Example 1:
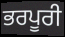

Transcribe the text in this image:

ਭਰਪੂਰੀ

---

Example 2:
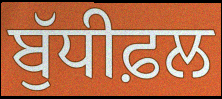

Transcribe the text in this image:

ਬੁੱਧੀਫ਼ਲ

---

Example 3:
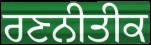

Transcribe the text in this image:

ਰਣਨੀਤੀਕ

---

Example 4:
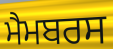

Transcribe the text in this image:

ਮੈਮਬਰਸ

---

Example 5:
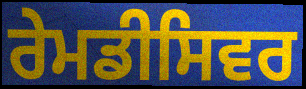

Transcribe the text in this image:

ਰੇਮਡੀਸਿਵਰ